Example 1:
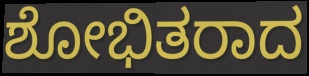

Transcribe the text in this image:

ಶೋಭಿತರಾದ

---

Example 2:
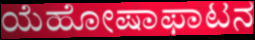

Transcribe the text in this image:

ಯೆಹೋಷಾಫಾಟನ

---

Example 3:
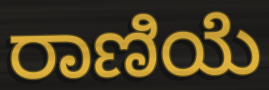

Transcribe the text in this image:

ರಾಣಿಯೆ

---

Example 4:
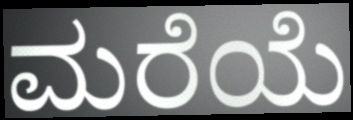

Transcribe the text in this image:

ಮರೆಯೆ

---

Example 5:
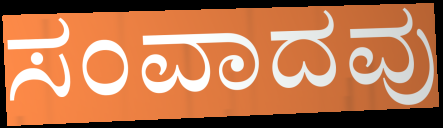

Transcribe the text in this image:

ಸಂವಾದವು